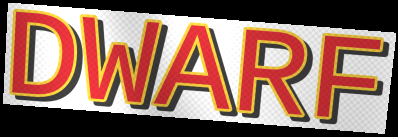
DWARF